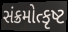
સંક્રમોત્કૃષ્ટ